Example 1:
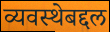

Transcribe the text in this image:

व्यवस्थेबद्दल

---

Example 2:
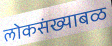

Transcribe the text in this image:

लोकसंख्याबळ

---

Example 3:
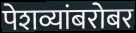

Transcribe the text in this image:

पेशव्यांबरोबर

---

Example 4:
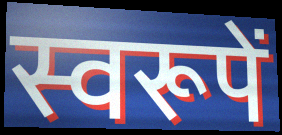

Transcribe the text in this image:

स्वरूपें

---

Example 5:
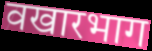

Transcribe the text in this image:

वखारभाग